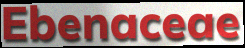
Ebenaceae